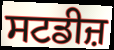
ਸਟਡੀਜ਼